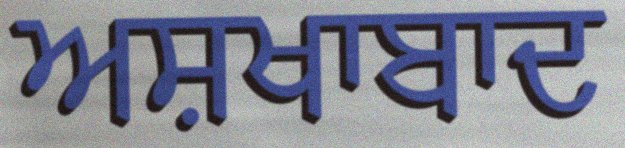
ਅਸ਼ਖਾਬਾਦ